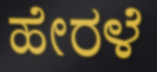
ಹೇರಳೆ